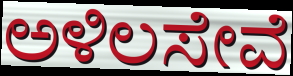
ಅಳಿಲಸೇವೆ